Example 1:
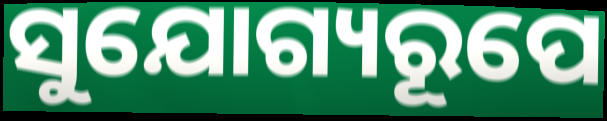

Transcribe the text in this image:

ସୁଯୋଗ୍ୟରୂପେ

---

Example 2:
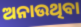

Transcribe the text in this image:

ଅନାଉଥିବା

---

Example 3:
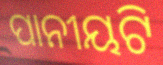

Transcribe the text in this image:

ପାନୀୟଟି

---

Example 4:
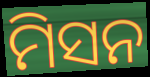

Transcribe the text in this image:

ମିସନ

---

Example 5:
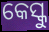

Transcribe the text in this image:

କେସ୍କୁ